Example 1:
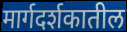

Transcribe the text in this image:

मार्गदर्शकातील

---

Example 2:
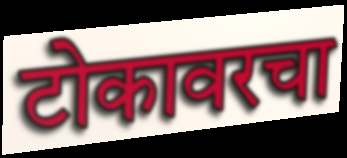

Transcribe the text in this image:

टोकावरचा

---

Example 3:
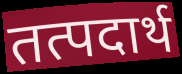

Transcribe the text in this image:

तत्पदार्थ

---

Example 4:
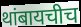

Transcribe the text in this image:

थांबायचीच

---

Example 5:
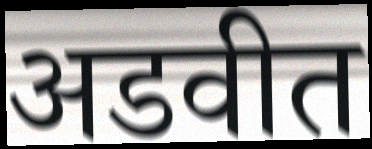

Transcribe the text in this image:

अडवीत